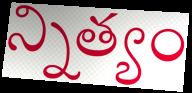
న్నిత్యం